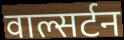
वाल्सर्टन